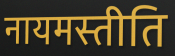
नायमस्तीति